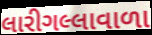
લારીગલ્લાવાળા